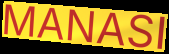
MANASI